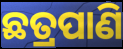
ଛତ୍ରପାଣି